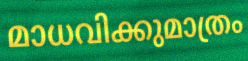
മാധവിക്കുമാത്രം